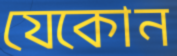
যেকোন